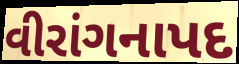
વીરાંગનાપદ